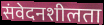
संवेदनशीलता